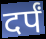
दर्पं